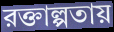
রক্তাল্পতায়